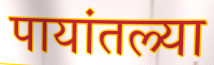
पायांतल्या